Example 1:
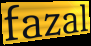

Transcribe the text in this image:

fazal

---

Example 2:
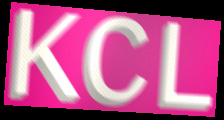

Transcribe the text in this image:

KCL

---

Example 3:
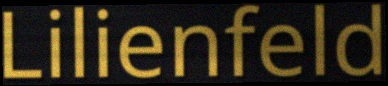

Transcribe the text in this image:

Lilienfeld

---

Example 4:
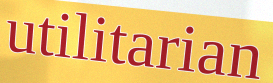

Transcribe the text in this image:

utilitarian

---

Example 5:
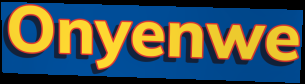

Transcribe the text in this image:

Onyenwe